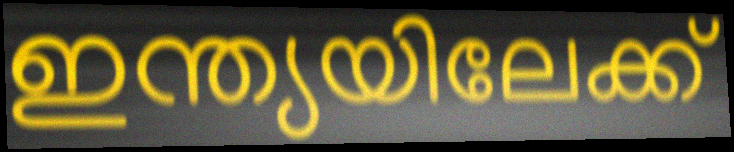
ഇന്ത്യയിലേക്ക്